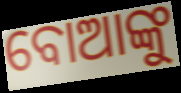
ବୋଆଙ୍କୁ